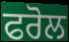
ਫਰੋਲ